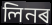
লিনৰ